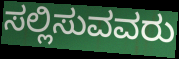
ಸಲ್ಲಿಸುವವರು